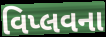
વિપ્લવના